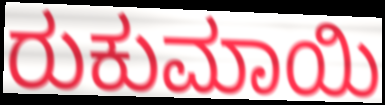
ರುಕುಮಾಯಿ